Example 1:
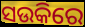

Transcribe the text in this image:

ସଉକିରେ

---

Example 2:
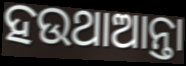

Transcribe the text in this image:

ହଉଥାଆନ୍ତା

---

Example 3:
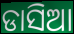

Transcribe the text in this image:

ଡାସିଆ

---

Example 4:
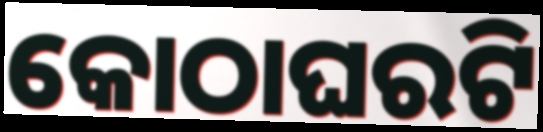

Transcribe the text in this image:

କୋଠାଘରଟି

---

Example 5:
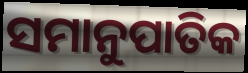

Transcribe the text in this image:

ସମାନୁପାତିକ